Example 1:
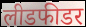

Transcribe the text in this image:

लीडफीडर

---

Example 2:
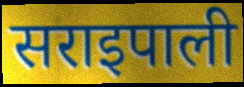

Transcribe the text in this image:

सराइपाली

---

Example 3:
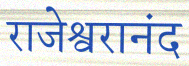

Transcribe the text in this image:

राजेश्वरानंद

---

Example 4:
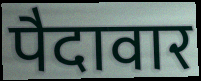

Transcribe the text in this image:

पैदावार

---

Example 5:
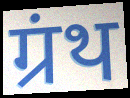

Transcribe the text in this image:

ग्रंथ